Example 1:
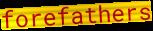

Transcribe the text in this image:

forefathers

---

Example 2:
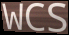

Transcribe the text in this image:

WCS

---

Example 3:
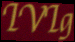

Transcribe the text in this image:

IVIg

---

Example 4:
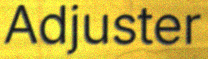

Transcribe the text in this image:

Adjuster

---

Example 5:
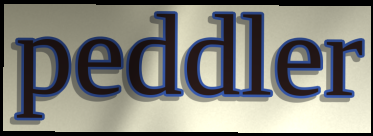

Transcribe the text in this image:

peddler